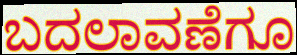
ಬದಲಾವಣೆಗೂ